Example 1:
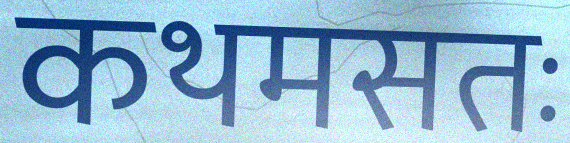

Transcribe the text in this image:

कथमसतः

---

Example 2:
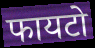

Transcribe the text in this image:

फायटो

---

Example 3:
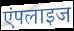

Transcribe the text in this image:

एंपलाइज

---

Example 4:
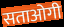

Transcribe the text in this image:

सताओगी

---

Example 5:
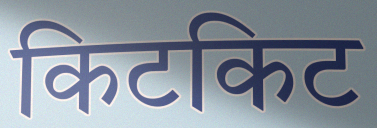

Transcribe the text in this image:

किटकिट